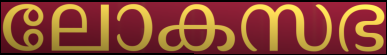
ലോകസഭ